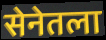
सेनेतला